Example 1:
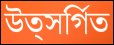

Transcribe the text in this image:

উত্সর্গিত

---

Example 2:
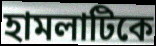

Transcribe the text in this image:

হামলাটিকে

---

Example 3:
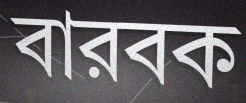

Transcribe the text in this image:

বারবক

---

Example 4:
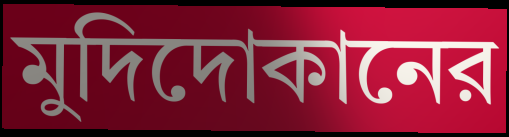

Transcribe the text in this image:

মুদিদোকানের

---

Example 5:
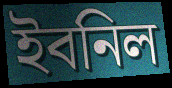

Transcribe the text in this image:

ইবনিল